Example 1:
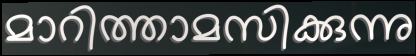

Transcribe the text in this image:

മാറിത്താമസിക്കുന്നു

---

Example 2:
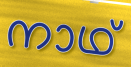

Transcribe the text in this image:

നാഥ്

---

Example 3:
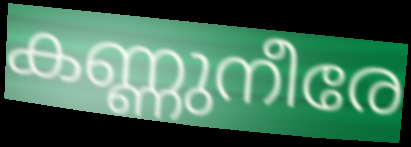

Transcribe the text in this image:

കണ്ണുനീരേ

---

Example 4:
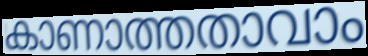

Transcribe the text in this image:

കാണാത്തതാവാം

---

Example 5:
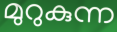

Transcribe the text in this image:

മുറുകുന്ന